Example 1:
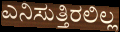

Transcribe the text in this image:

ಎನಿಸುತ್ತಿರಲಿಲ್ಲ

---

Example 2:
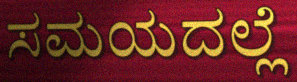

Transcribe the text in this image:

ಸಮಯದಲ್ಲೆ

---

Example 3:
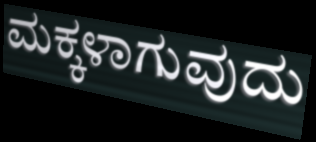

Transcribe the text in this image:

ಮಕ್ಕಳಾಗುವುದು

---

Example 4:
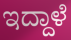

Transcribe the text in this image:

ಇದ್ದಾಳೆ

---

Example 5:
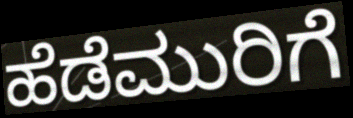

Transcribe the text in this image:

ಹೆಡೆಮುರಿಗೆ